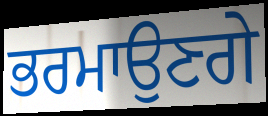
ਭਰਮਾਉਣਗੇ